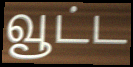
வூட்ட